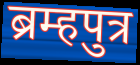
ब्रम्हपुत्र